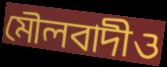
মৌলবাদীও